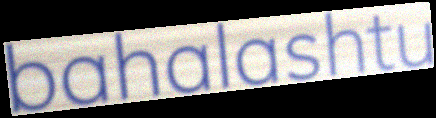
bahalashtu